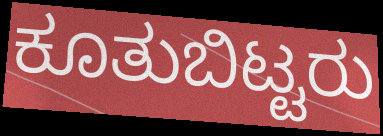
ಕೂತುಬಿಟ್ಟರು